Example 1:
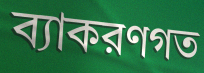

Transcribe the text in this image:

ব্যাকরণগত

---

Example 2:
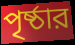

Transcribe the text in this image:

পৃষ্ঠার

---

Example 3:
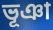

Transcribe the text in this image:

ভূঞা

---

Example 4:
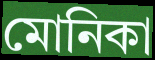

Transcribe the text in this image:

মোনিকা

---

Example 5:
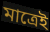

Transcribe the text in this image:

মাত্রেই